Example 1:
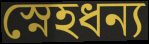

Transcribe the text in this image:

স্নেহধন্য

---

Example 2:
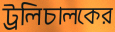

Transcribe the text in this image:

ট্রলিচালকের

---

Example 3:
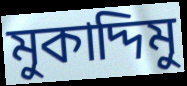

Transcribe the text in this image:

মুকাদ্দিমু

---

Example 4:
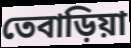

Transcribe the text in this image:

তেবাড়িয়া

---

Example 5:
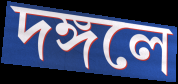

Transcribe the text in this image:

দঙ্গলে